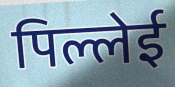
पिल्लेई